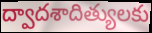
ద్వాదశాదిత్యులకు